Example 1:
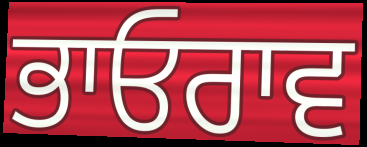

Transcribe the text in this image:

ਭਾਓਰਾਵ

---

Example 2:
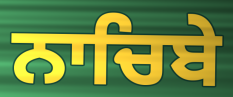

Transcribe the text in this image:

ਨਾਚਿਬੇ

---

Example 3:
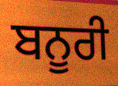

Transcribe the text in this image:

ਬਨੂਰੀ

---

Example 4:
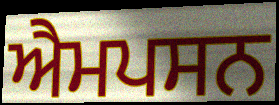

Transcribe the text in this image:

ਐਮਪਸਨ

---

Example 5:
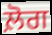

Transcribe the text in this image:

ਲ਼ੋਗ